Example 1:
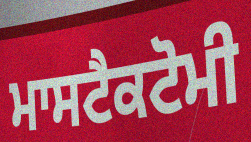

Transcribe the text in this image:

ਮਾਸਟੈਕਟੋਮੀ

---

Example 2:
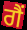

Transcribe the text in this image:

ਗੈਂ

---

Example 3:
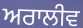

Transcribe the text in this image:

ਅਰਾਲੀਵ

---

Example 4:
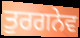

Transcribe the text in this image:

ਤੁਰਗਨੇਵ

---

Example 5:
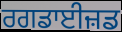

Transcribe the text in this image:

ਰਗਡਾਈਜ਼ਡ